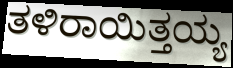
ತಳಿರಾಯಿತ್ತಯ್ಯ